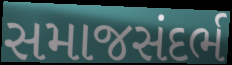
સમાજસંદર્ભ